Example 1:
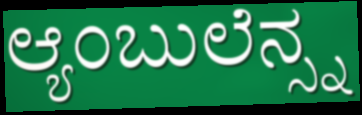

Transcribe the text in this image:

ಆ್ಯಂಬುಲೆನ್ಸ್ನ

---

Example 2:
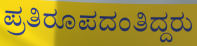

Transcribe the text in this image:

ಪ್ರತಿರೂಪದಂತಿದ್ದರು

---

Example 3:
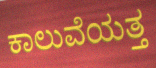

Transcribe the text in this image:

ಕಾಲುವೆಯತ್ತ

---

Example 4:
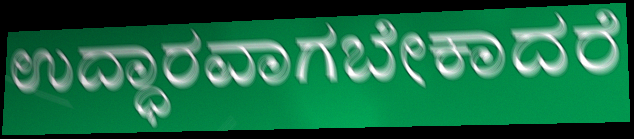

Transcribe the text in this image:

ಉದ್ಧಾರವಾಗಬೇಕಾದರೆ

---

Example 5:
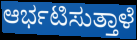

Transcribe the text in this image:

ಆರ್ಭಟಿಸುತ್ತಾಳೆ